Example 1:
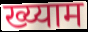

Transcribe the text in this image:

ख्य्याम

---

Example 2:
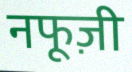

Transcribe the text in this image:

नफूज़ी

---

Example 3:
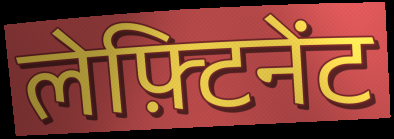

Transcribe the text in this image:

लेफ़्टिनेंट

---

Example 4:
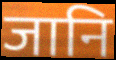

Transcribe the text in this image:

जानि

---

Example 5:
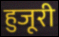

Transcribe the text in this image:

हुजूरी